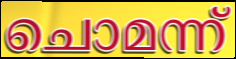
ചൊമന്ന്